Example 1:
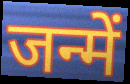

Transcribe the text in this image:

जन्में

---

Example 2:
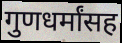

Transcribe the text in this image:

गुणधर्मांसह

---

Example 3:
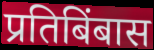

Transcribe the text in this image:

प्रतिबिंबास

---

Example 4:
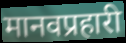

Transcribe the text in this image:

मानवप्रहारी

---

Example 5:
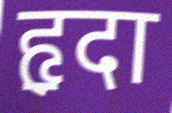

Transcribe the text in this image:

हृ॒दा